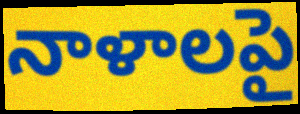
నాళాలపై